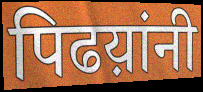
पिढय़ांनी